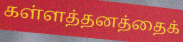
கள்ளத்தனத்தைக்